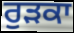
ਰੁੜਕਾ